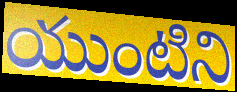
యుంటిని